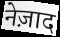
नेज़ाद